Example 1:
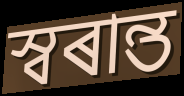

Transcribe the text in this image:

স্বৰান্ত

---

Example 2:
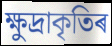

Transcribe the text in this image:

ক্ষুদ্ৰাকৃতিৰ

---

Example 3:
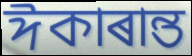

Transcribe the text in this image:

ঈকাৰান্ত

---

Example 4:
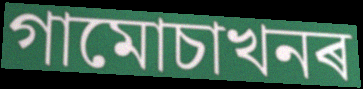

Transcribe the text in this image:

গামোচাখনৰ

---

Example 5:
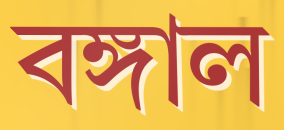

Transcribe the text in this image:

বঙ্গাল